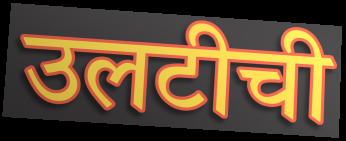
उलटीची